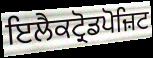
ਇਲੈਕਟ੍ਰੋਡਪੋਜ਼ਿਟ